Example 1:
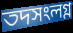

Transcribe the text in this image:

তদসংলগ্ন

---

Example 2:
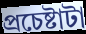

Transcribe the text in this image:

প্রচেষ্টাটা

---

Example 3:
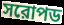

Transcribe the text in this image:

সরোপড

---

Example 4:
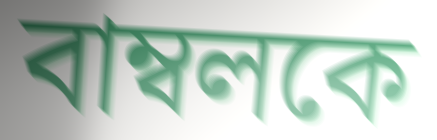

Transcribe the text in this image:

বাম্বলকে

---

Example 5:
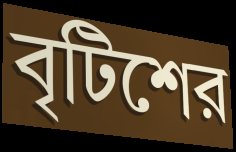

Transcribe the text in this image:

বৃটিশের